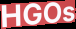
HGOs